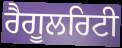
ਰੈਗੂਲਰਿਟੀ